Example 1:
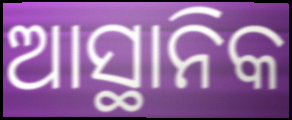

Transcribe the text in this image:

ଆସ୍ଥାନିକ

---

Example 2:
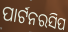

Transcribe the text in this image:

ପାର୍ଟନରସିପ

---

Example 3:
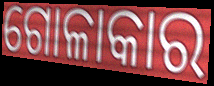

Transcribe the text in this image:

ଗୋଳାକାର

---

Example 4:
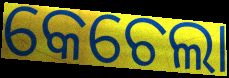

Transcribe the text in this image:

କେଚେଲା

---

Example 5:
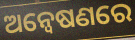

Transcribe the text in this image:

ଅନ୍ବେଷଣରେ